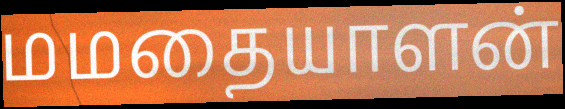
மமதையாளன்